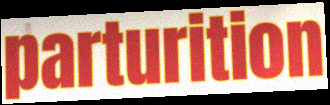
parturition